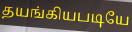
தயங்கியபடியே